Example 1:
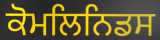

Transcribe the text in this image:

ਕੋਮਲਿਨਿਡਸ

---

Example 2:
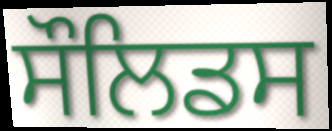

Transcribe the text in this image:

ਸੌਲਿਡਸ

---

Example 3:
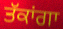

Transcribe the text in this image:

ਤੱਕਾਂਗਾ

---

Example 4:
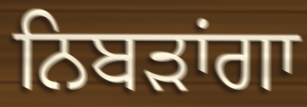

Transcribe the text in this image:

ਨਿਬੜਾਂਗਾ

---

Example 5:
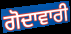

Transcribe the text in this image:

ਗੋਦਾਵਾਰੀ